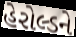
હેરોલ્ડને